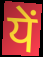
यें